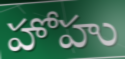
హోహు